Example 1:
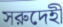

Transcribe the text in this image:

সরুদেহী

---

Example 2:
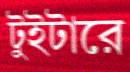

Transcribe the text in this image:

টুইটারে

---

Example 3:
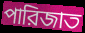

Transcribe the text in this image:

পারিজাত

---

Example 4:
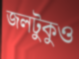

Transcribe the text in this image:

জলটুকুও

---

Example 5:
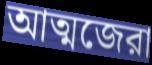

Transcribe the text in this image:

আত্মজেরা